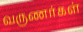
வருணர்கள்